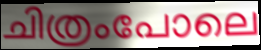
ചിത്രംപോലെ